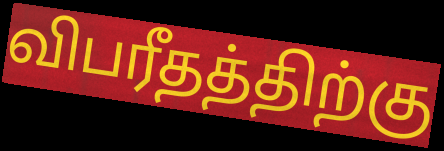
விபரீதத்திற்கு